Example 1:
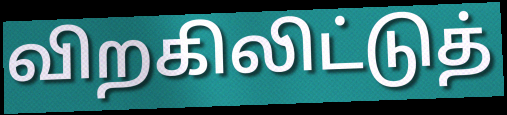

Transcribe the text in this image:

விறகிலிட்டுத்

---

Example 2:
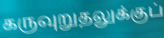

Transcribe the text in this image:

கருவுறுதலுக்குப்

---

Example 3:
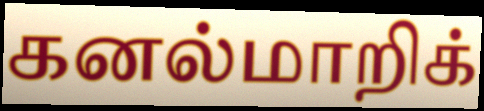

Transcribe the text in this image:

கனல்மாறிக்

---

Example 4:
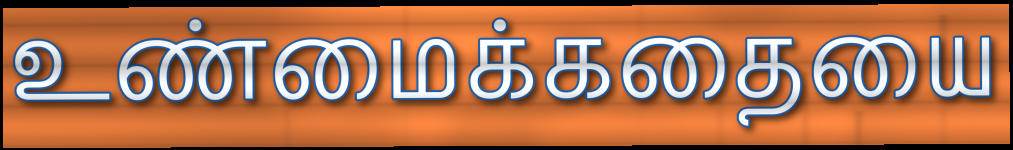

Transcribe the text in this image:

உண்மைக்கதையை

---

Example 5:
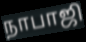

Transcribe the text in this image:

நாபாஜி